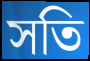
সতি